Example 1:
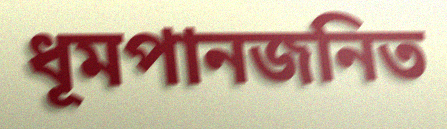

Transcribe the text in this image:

ধূমপানজনিত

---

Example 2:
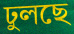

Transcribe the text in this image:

ঢুলছে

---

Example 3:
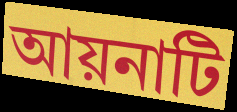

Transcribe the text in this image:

আয়নাটি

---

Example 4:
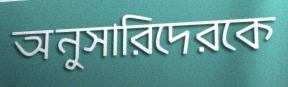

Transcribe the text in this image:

অনুসারিদেরকে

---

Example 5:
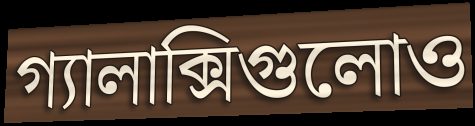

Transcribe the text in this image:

গ্যালাক্সিগুলোও